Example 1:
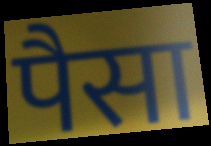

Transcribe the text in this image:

पैसा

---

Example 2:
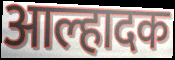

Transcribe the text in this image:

आल्हादक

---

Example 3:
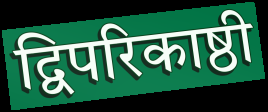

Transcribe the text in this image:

द्विपरिकाष्ठी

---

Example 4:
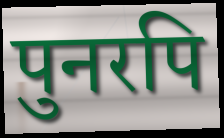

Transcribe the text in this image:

पुनरपि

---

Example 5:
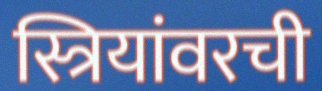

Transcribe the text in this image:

स्त्रियांवरची